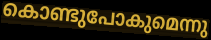
കൊണ്ടുപോകുമെന്നു